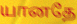
யானதே